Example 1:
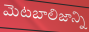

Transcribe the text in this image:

మెటబాలిజాన్ని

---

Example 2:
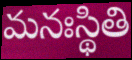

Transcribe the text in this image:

మనఃస్థితి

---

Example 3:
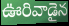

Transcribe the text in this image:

ఊరివాడైన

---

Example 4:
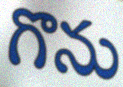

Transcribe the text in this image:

గొను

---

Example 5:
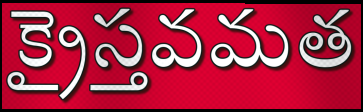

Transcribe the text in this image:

క్రైస్తవమత